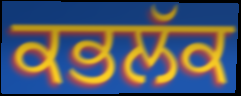
ਕਭਲੱਕ